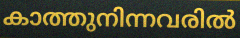
കാത്തുനിന്നവരിൽ